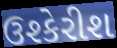
ઉશ્કેરીશ